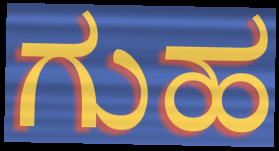
ಗುಹ